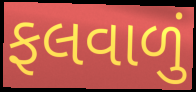
ફલવાળું